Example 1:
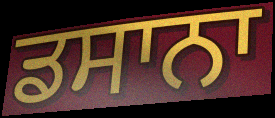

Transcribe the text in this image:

ਡਸਾਨਾ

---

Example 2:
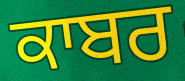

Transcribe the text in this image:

ਕਾਬਰ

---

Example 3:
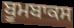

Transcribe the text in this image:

ਬੂਮਬਾਕਸ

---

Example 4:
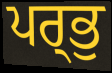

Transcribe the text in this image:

ਪਰ੍ਭੁ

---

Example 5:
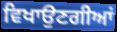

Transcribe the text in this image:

ਵਿਖਾਉਣਗੀਆਂ